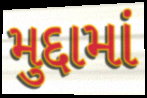
મુદ્દામાં